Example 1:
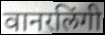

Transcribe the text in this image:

वानरलिंगी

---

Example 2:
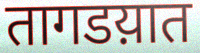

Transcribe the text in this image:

तागडय़ात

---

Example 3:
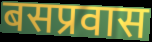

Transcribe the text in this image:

बसप्रवास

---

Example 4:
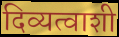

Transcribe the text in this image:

दिव्यत्वाशी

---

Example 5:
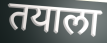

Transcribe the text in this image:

तयाला